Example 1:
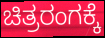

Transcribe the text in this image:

ಚಿತ್ರರಂಗಕ್ಕೆ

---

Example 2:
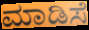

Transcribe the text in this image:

ಮಾಡಿಸೆ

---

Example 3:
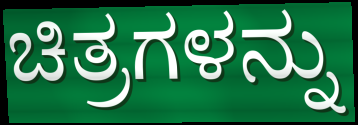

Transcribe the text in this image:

ಚಿತ್ರಗಳನ್ನು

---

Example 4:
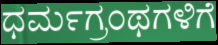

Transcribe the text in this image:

ಧರ್ಮಗ್ರಂಥಗಳಿಗೆ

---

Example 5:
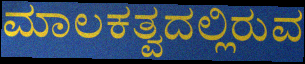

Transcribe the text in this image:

ಮಾಲಕತ್ವದಲ್ಲಿರುವ